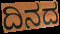
ದಿನದ